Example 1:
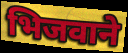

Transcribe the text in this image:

भिजवाने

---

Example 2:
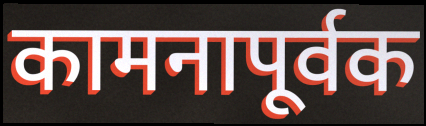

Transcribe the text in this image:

कामनापूर्वक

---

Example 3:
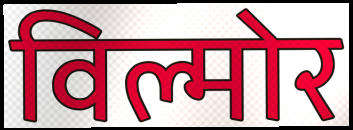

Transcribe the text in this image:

विल्मोर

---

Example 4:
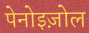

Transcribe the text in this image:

पेनोइज़ोल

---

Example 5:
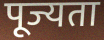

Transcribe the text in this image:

पूज्यता